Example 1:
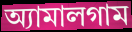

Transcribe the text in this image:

অ্যামালগাম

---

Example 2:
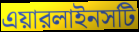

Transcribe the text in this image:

এয়ারলাইনসটি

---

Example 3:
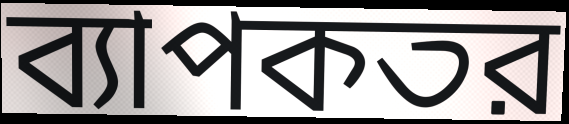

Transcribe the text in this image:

ব্যাপকতর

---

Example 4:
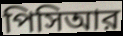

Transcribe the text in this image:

পিসিআর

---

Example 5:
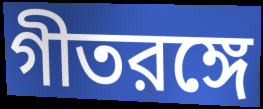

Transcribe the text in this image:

গীতরঙ্গে